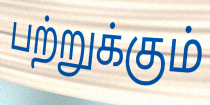
பற்றுக்கும்